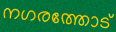
നഗരത്തോട്